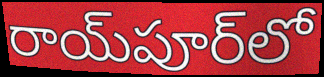
రాయ్‌పూర్‌లో